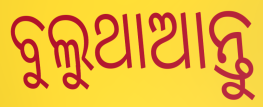
ବୁଲୁଥାଆନ୍ତୁ